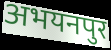
अभयनपुर